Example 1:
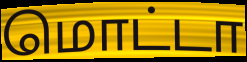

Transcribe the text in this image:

மொட்டா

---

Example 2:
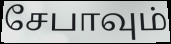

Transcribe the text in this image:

சேபாவும்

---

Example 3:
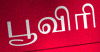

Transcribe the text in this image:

பூவிரி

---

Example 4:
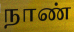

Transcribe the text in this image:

நாண்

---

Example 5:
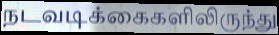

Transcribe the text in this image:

நடவடிக்கைகளிலிருந்து